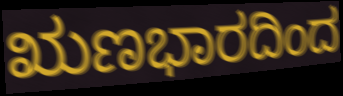
ಋಣಭಾರದಿಂದ